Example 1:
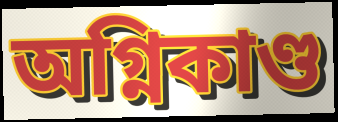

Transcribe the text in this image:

অগ্নিকাণ্ড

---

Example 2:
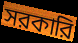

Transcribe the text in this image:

সরকারি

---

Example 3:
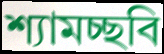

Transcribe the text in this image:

শ্যামচ্ছবি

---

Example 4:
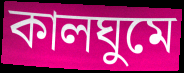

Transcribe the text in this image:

কালঘুমে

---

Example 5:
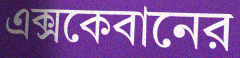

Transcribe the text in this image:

এক্সকেবানের